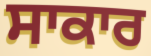
ਸਾਕਾਰ